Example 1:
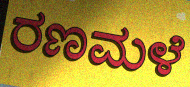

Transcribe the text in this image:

ರಣಮಳೆ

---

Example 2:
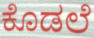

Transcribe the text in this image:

ಕೊಡಲೆ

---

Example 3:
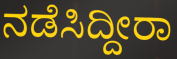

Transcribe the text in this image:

ನಡೆಸಿದ್ದೀರಾ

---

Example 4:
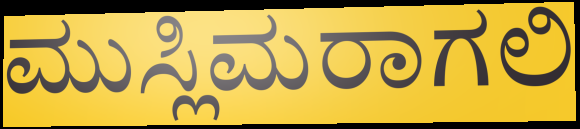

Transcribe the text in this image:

ಮುಸ್ಲಿಮರಾಗಲಿ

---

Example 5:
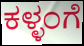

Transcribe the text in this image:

ಕಳ್ಳಂಗೆ